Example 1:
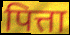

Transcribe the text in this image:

पित्ता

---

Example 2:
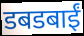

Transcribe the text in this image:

डबडबाईं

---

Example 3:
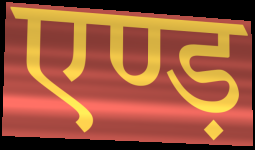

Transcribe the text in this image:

एण्ड़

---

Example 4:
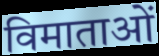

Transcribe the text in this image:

विमाताओं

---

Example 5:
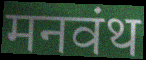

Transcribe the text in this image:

मनवंथ